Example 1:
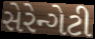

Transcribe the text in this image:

સેરેન્ગેટી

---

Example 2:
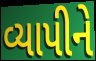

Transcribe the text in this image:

વ્યાપીને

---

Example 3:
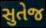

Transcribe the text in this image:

સુતેજ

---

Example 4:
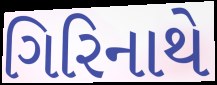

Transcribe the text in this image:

ગિરિનાથે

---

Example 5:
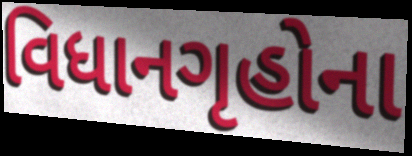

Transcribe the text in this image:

વિધાનગૃહોના